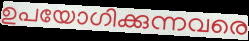
ഉപയോഗിക്കുന്നവരെ